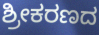
ಶ್ರೀಕರಣದ